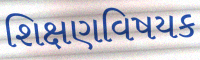
શિક્ષણવિષયક